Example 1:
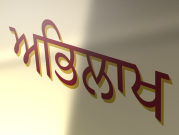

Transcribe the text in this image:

ਅਭਿਲਾਖ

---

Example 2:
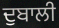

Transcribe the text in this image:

ਦੁਬਾਲੀ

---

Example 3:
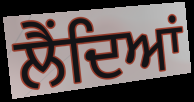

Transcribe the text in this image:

ਲੈਂਦਿਆਂ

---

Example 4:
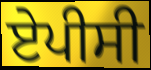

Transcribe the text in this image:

ਏਪੀਸੀ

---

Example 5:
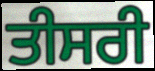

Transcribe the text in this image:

ਤੀਸਰੀ